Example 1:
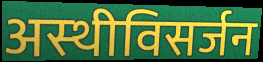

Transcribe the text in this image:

अस्थीविसर्जन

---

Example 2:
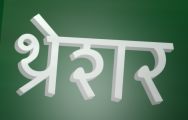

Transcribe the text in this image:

थ्रेशर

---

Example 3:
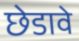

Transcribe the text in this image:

छेडावे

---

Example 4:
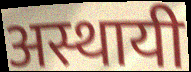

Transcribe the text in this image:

अस्थायी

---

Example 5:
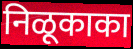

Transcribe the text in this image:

निळूकाका